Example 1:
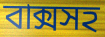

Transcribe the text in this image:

বাক্সসহ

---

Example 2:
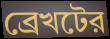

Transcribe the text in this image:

ব্রেখটের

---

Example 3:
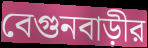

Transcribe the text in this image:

বেগুনবাড়ীর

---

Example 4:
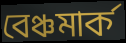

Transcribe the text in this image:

বেঞ্চমার্ক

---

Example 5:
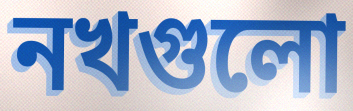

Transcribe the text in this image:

নখগুলো